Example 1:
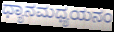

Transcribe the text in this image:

ಧ್ಯಾನಮಧ್ಯಯನಂ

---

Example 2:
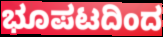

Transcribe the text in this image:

ಭೂಪಟದಿಂದ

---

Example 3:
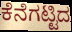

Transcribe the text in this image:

ಕೆನೆಗಟ್ಟಿದ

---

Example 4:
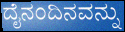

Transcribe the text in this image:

ದೈನಂದಿನವನ್ನು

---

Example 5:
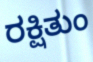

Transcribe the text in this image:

ರಕ್ಷಿತುಂ